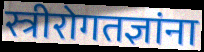
स्त्रीरोगतज्ञांना